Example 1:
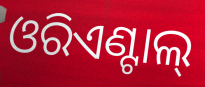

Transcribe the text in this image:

ଓରିଏଣ୍ଟାଲ୍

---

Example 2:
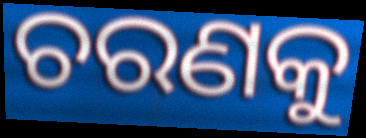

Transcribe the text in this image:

ଚରଣକୁ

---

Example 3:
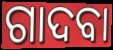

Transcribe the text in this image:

ଗାଦବା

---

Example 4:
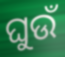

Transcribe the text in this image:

ଘୁଉଁ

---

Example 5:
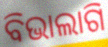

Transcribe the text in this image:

ବିଭାଲାଗି